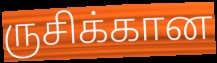
ருசிக்கான